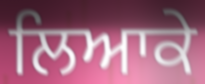
ਲਿਆਕੇ